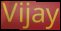
Vijay